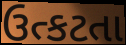
ઉત્કટતા